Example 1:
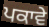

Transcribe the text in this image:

ਪਕਾਵੇ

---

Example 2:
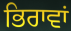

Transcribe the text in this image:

ਭਿਰਾਵਾਂ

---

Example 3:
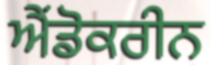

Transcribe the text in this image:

ਐਂਡੋਕਰੀਨ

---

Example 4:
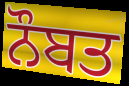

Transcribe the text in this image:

ਨੌਬਤ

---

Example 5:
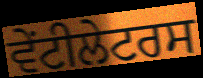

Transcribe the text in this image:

ਵੇਂਟੀਲੇਟਰਸ